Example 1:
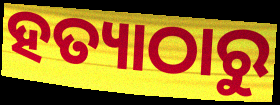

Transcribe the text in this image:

ହତ୍ୟାଠାରୁ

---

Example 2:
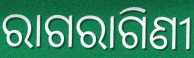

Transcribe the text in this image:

ରାଗରାଗିଣୀ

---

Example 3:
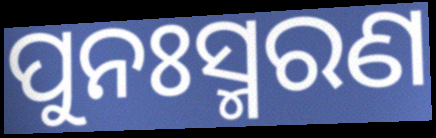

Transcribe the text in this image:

ପୁନଃସ୍ମରଣ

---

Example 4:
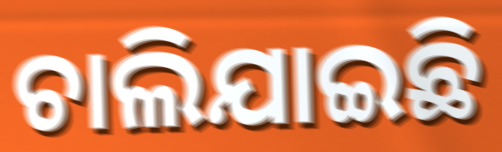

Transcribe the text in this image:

ଚାଲିଯାଇଛି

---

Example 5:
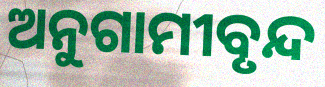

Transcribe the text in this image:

ଅନୁଗାମୀବୃନ୍ଦ